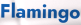
Flamingo